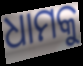
ଧାମକୁ